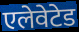
एलेवेटेड